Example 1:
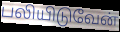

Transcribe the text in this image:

பலியிடுவேன்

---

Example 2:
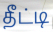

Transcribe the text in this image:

தீட்டி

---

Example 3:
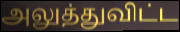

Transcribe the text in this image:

அலுத்துவிட்ட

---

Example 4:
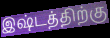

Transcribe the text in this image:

இஷ்டத்திற்கு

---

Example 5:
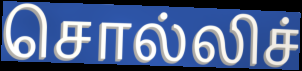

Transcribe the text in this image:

சொல்லிச்